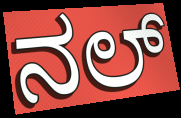
ನಲ್